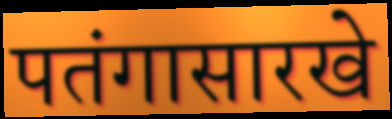
पतंगासारखे